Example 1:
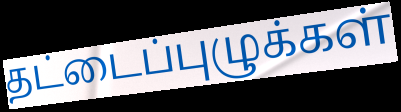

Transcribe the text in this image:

தட்டைப்புழுக்கள்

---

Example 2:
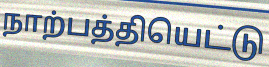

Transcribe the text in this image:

நாற்பத்தியெட்டு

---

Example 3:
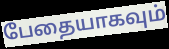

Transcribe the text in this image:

பேதையாகவும்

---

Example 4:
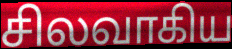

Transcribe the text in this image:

சிலவாகிய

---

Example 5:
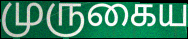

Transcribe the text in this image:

முருகைய